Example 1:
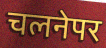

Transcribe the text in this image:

चलनेपर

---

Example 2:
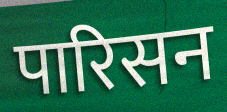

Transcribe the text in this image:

पारिसन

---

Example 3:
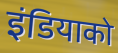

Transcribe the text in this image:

इंडियाको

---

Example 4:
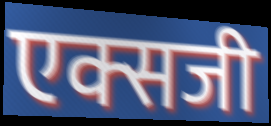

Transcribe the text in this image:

एक्सजी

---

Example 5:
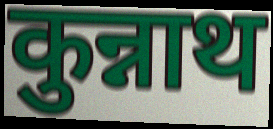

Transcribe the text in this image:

कुन्नाथ